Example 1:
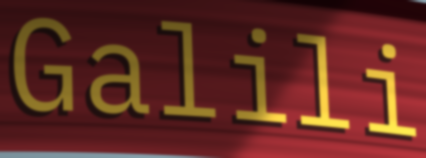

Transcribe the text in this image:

Galili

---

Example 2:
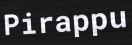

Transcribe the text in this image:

Pirappu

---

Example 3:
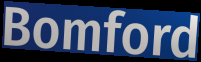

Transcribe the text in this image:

Bomford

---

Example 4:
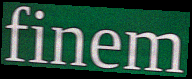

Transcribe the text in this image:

finem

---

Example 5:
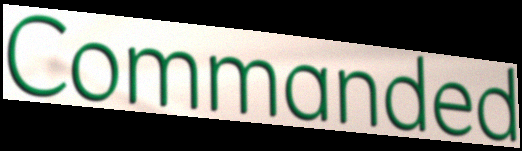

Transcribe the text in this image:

Commanded